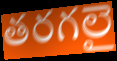
తరగలై